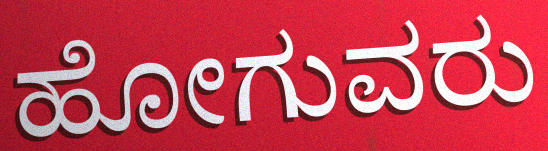
ಹೋಗುವರು